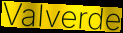
Valverde